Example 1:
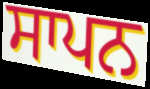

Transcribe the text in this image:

ਸਾਪਨ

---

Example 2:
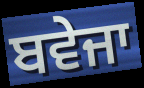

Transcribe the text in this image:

ਬਵੇਜਾ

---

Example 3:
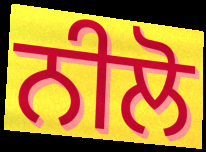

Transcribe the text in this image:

ਨੀਲੋ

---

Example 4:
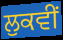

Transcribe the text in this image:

ਲੁਕਵੀਂ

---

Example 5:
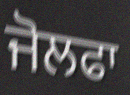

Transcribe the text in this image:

ਜੋਲਫਾ